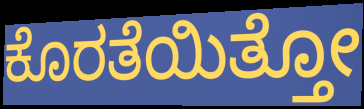
ಕೊರತೆಯಿತ್ತೋ